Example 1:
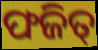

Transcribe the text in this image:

ଫଜିତ୍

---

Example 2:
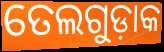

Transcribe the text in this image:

ତେଲଗୁଡ଼ାକ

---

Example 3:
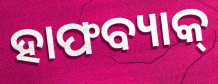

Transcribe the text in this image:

ହାଫବ୍ୟାକ୍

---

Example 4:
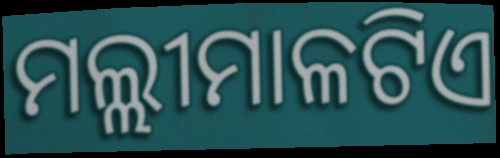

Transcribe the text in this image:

ମଲ୍ଲୀମାଳଟିଏ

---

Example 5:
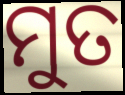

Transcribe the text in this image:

ମୁତ